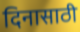
दिनासाठी